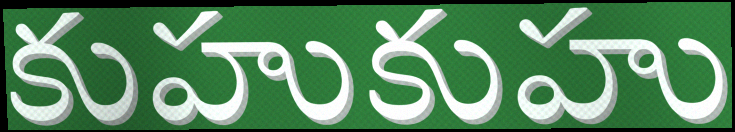
కుహుకుహు